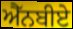
ਐੱਨਬੀਏ